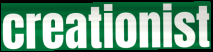
creationist